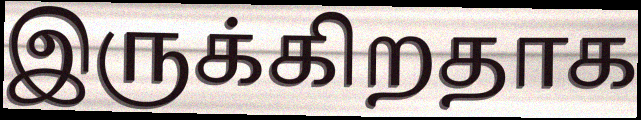
இருக்கிறதாக